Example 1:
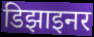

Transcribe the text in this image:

डिझाइनर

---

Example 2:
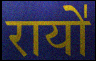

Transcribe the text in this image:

रायो॑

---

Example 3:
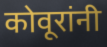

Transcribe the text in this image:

कोवूरांनी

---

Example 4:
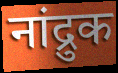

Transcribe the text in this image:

नांद्रुक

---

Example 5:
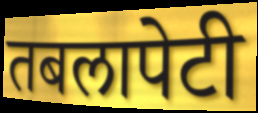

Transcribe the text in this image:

तबलापेटी